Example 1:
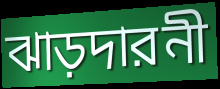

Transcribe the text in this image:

ঝাড়দারনী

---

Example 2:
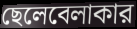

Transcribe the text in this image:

ছেলেবেলাকার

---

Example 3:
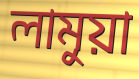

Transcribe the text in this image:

লামুয়া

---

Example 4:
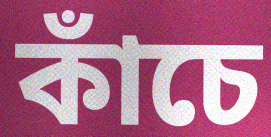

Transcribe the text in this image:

কাঁচে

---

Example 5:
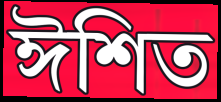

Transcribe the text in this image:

ঈশিত